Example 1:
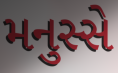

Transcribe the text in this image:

મનુસ્સે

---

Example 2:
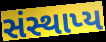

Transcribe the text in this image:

સંસ્થાપ્ય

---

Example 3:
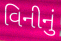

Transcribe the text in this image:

વિનીનું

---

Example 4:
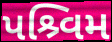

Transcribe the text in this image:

પશ્ર્વિમ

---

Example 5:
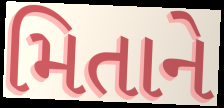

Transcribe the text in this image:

મિતાને